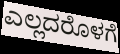
ಎಲ್ಲದರೊಳಗೆ